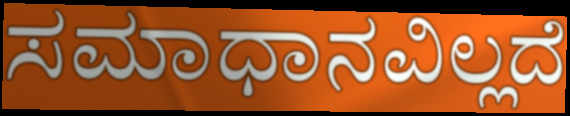
ಸಮಾಧಾನವಿಲ್ಲದೆ